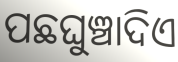
ପଛଘୁଞ୍ଚାଦିଏ